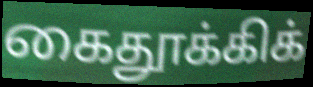
கைதூக்கிக்